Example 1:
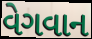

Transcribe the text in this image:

વેગવાન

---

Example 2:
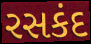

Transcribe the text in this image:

રસકંદ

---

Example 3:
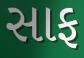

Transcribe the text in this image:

સાફ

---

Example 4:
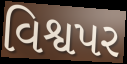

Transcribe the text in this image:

વિશ્વપર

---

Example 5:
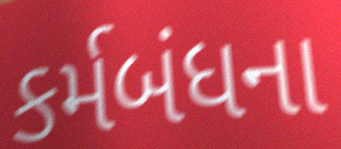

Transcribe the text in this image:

કર્મબંધના